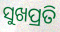
ସୁଖପ୍ରତି